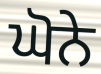
ਘੋਨੇ